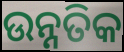
ଉନ୍ନତିକ